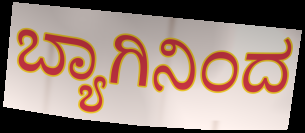
ಬ್ಯಾಗಿನಿಂದ